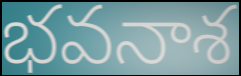
భవనాశ